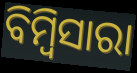
ବିମ୍ବିସାରା